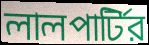
লালপার্টির